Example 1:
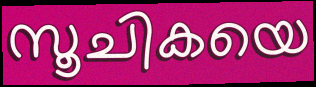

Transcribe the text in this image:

സൂചികയെ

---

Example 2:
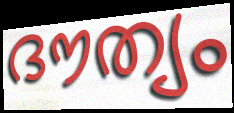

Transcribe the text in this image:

ദൗത്യം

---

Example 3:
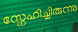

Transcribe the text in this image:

സ്നേഹിച്ചിരുന്നു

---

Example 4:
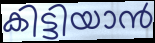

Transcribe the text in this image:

കിട്ടിയാൻ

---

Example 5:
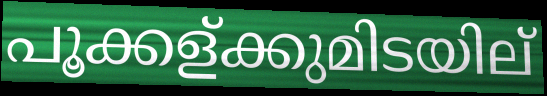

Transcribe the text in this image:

പൂക്കള്ക്കുമിടയില്